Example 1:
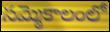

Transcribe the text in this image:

సమ్మెకాలంలో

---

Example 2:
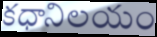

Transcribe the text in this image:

కధానిలయం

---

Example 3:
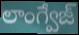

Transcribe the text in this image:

లాంగ్వేజ్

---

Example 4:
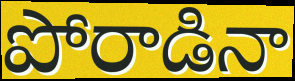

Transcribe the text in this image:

పోరాడినా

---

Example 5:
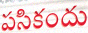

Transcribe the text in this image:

పసికందు